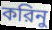
করিনু